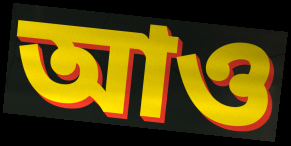
আও